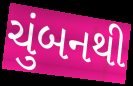
ચુંબનથી